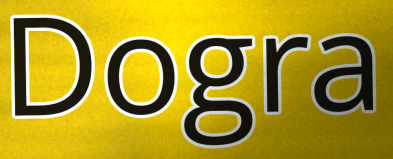
Dogra